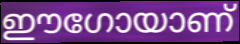
ഈഗോയാണ്